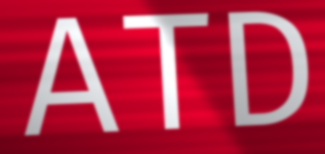
ATD